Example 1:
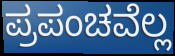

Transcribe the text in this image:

ಪ್ರಪಂಚವೆಲ್ಲ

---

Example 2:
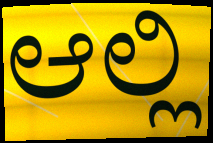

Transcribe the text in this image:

ಆಲ್ಲಿ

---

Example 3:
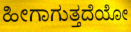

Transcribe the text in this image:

ಹೀಗಾಗುತ್ತದೆಯೋ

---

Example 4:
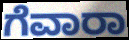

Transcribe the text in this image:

ಗೆವಾರಾ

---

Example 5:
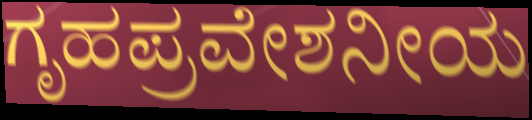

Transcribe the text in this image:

ಗೃಹಪ್ರವೇಶನೀಯ